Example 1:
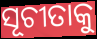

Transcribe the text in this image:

ସୂଚୀତାକୁ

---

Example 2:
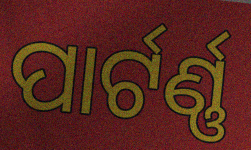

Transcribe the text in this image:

ପାର୍ଟର୍ଣ୍ଣ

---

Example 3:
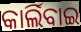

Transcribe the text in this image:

କାର୍ଲିବାଇ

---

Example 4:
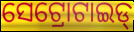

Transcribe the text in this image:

ସେଟ୍ରୋଟାଇଡ୍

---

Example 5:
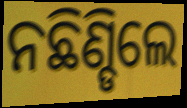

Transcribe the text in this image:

ନଛିଣ୍ଡିଲେ